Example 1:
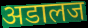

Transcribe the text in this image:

अडालज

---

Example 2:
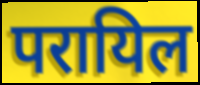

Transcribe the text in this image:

परायिल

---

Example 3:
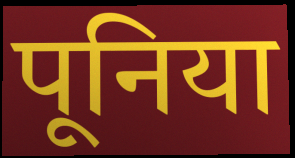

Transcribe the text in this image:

पूनिया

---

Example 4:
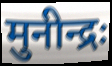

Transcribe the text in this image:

मुनीन्द्रः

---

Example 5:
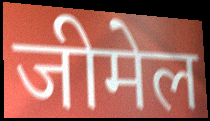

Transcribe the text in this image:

जीमेल